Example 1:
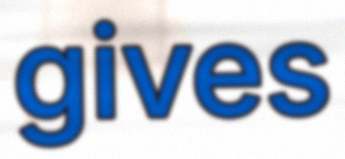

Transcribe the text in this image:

gives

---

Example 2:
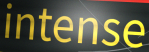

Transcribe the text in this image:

intense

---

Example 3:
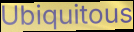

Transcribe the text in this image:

Ubiquitous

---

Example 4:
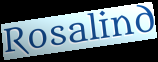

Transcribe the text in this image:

Rosalind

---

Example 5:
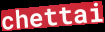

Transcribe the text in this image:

chettai